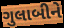
ગુલાબીને